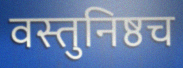
वस्तुनिष्ठच